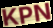
KPN